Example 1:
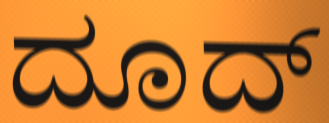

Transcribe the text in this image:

ದೂದ್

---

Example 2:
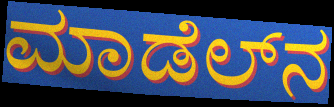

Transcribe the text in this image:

ಮಾಡೆಲ್‌ನ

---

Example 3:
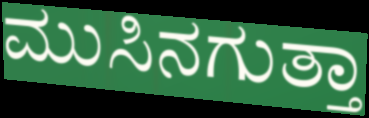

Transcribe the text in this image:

ಮುಸಿನಗುತ್ತಾ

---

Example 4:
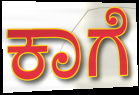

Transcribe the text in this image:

ಕಾಗೆ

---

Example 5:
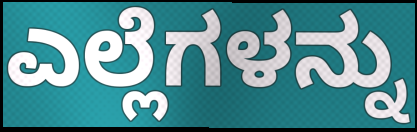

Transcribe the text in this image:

ಎಲ್ಲೆಗಳನ್ನು